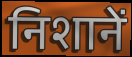
निशानें